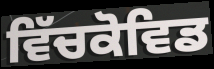
ਵਿੱਚਕੋਵਿਡ